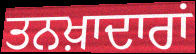
ਤਨਖ਼ਾਦਾਰਾਂ